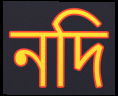
নদি